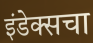
इंडेक्सचा